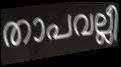
താപവല്ലീ